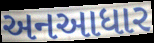
અનઆધાર